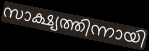
സാക്ഷ്യത്തിന്നായി